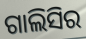
ଗାଲିସିର